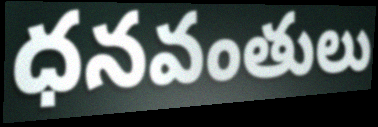
ధనవంతులు